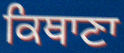
ਕਿਥਾਣਾ